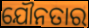
ଯୌନତାର